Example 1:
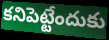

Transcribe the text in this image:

కనిపెట్టేందుకు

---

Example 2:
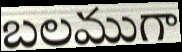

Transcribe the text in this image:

బలముగా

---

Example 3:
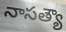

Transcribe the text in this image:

నాసత్యౌ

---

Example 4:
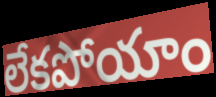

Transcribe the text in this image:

లేకపోయాం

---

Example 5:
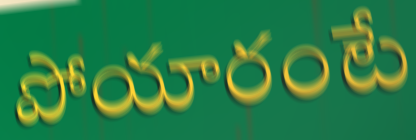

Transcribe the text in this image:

పోయారంటే